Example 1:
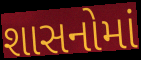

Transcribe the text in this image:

શાસનોમાં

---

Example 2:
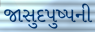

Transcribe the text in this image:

જાસુદપુષ્પની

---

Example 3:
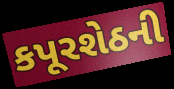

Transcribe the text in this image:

કપૂરશેઠની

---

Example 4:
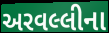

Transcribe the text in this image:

અરવલ્લીના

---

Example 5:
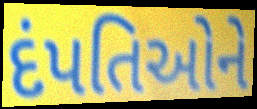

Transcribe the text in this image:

દંપતિઓને